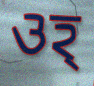
ওহ্